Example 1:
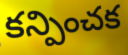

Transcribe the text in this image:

కన్పించక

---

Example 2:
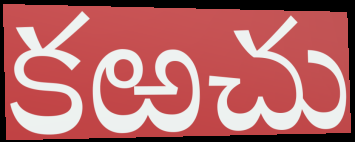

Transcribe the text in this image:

కఱచు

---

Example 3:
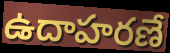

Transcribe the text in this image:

ఉదాహరణే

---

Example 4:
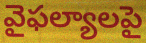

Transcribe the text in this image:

వైఫల్యాలపై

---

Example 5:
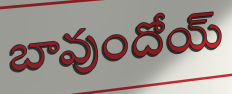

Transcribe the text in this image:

బావుందోయ్